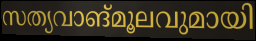
സത്യവാങ്മൂലവുമായി